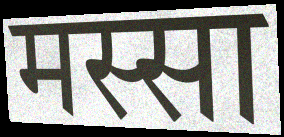
मस्‍सा